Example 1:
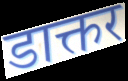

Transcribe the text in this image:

डाक्तर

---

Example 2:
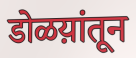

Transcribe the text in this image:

डोळय़ांतून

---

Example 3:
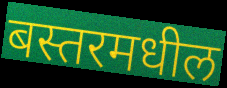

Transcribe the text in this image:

बस्तरमधील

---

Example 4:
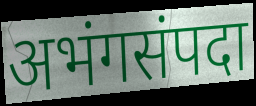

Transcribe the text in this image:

अभंगसंपदा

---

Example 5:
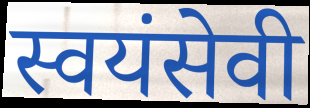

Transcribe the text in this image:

स्वयंसेवी